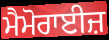
ਮੈਮੋਰਾਈਜ਼